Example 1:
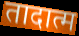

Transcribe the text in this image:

तादात्म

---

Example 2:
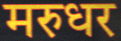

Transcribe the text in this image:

मरुधर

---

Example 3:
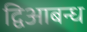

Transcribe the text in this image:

द्विआबन्ध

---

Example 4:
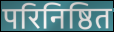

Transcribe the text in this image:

परिनिष्ठित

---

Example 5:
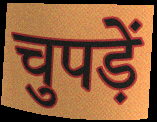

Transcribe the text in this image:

चुपड़ें